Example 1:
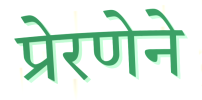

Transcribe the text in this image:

प्रेरणेने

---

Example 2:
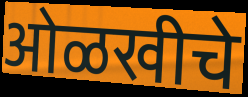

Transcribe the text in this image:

ओळखीचे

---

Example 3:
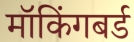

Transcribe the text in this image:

मॉकिंगबर्ड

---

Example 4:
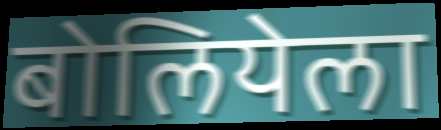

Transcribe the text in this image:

बोलियेला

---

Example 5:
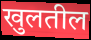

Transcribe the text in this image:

खुलतील